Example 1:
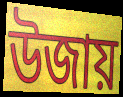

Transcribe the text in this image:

উজায়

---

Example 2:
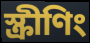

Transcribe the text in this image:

স্ক্ৰীণিং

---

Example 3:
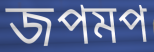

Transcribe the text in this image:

জপমপ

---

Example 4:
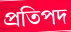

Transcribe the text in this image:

প্ৰতিপদ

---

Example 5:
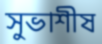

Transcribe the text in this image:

সুভাশীষ